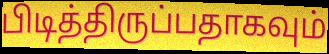
பிடித்திருப்பதாகவும்